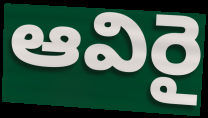
ఆవిరై